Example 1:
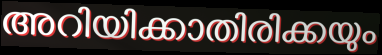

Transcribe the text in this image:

അറിയിക്കാതിരിക്കയും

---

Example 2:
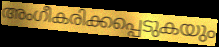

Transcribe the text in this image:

അംഗീകരിക്കപ്പെടുകയും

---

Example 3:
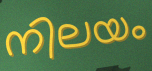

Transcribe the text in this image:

നിലയം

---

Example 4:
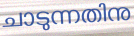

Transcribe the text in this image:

ചാടുന്നതിനു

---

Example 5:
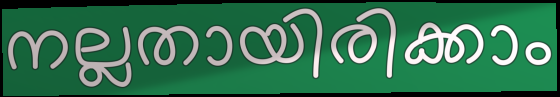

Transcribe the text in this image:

നല്ലതായിരിക്കാം